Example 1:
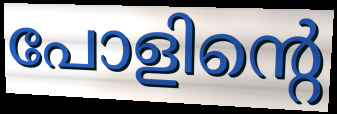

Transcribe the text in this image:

പോളിന്റെ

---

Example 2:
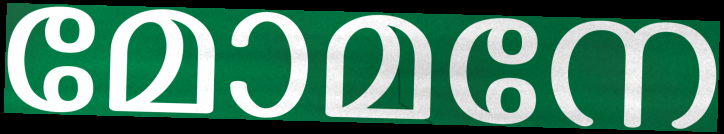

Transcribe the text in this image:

മോമനേ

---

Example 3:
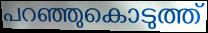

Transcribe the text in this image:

പറഞ്ഞുകൊടുത്ത്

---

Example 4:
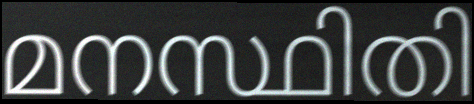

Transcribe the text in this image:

മനസ്ഥിതി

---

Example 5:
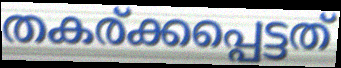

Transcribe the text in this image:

തകര്ക്കപ്പെട്ടത്